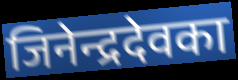
जिनेन्द्रदेवका